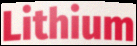
Lithium